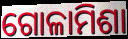
ଗୋଳାମିଶା